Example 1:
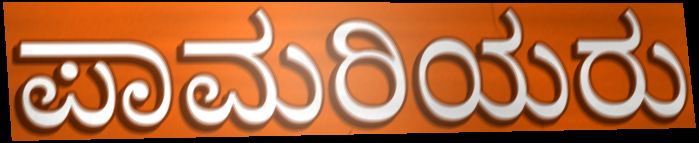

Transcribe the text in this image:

ಪಾಮರಿಯರು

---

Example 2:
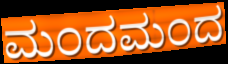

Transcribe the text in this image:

ಮಂದಮಂದ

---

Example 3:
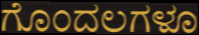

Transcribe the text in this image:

ಗೊಂದಲಗಳೂ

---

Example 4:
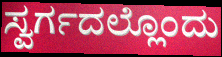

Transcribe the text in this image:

ಸ್ವರ್ಗದಲ್ಲೊಂದು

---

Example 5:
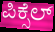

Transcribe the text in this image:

ಪಿಕ್ಸೆಲ್